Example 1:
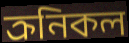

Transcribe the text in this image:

ক্রনিকল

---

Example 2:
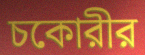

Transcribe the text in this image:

চকোরীর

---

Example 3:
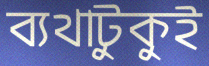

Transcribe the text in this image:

ব্যথাটুকুই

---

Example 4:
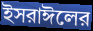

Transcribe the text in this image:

ইসরাঈলের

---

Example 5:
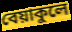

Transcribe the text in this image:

বেয়াকুলে